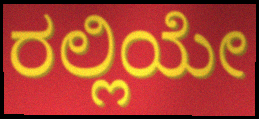
ರಲ್ಲಿಯೇ